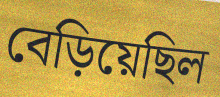
বেড়িয়েছিল